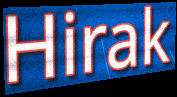
Hirak